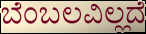
ಬೆಂಬಲವಿಲ್ಲದೆ